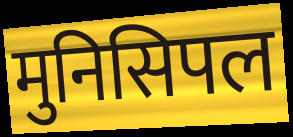
मुनिसिपल